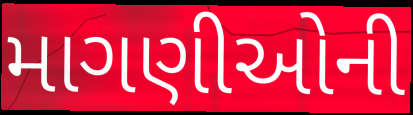
માગણીઓની